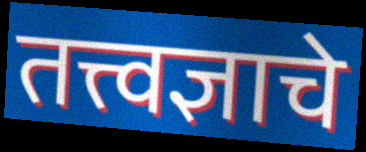
तत्त्वज्ञाचे